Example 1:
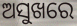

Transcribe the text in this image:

ଅସୁଖରେ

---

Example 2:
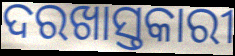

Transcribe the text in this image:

ଦରଖାସ୍ତକାରୀ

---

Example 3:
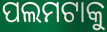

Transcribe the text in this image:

ପଲମଟାକୁ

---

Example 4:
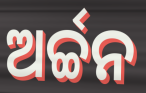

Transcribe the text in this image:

ଅର୍ଚ୍ଚନ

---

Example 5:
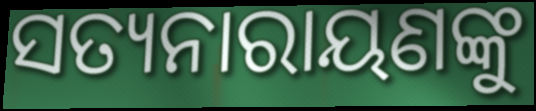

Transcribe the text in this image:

ସତ୍ୟନାରାୟଣଙ୍କୁ